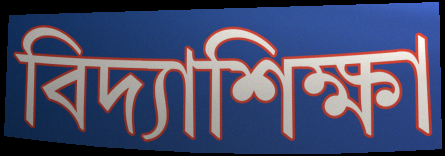
বিদ্যাশিক্ষা